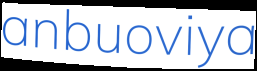
anbuoviya